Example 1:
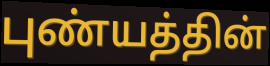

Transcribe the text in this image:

புண்யத்தின்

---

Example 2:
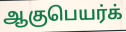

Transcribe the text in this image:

ஆகுபெயர்க்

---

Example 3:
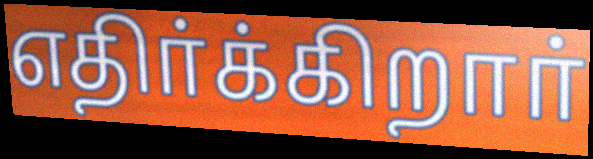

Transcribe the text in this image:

எதிர்க்கிறார்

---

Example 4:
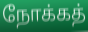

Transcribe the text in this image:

நோக்கத்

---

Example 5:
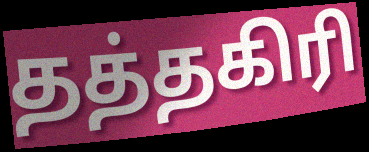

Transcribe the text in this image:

தத்தகிரி